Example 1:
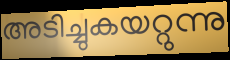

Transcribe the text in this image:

അടിച്ചുകയറ്റുന്നു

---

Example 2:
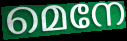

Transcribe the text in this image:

മെനേ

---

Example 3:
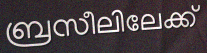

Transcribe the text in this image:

ബ്രസീലിലേക്ക്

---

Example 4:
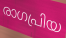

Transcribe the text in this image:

രാഗപ്രിയ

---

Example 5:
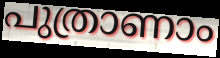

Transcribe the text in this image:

പുത്രാണാം